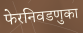
फेरनिवडणुका